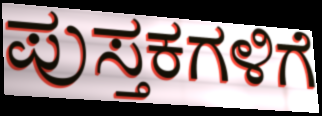
ಪುಸ್ತಕಗಳಿಗೆ